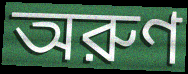
অরুণ